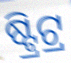
ଷ୍ଟ୍ରିଟ୍ର